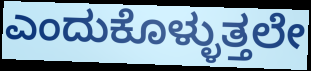
ಎಂದುಕೊಳ್ಳುತ್ತಲೇ